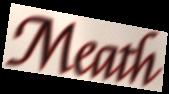
Meath